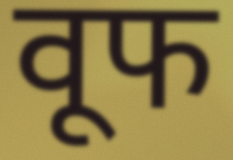
वूफ